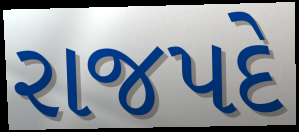
રાજપદે